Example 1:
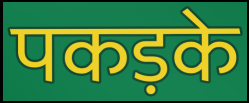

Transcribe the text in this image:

पकड़के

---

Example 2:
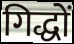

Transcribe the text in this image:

गिद्धों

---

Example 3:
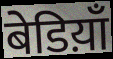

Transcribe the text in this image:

बेडिय़ाँ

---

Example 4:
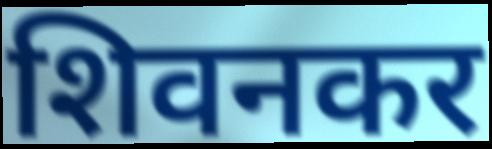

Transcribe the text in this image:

शिवनकर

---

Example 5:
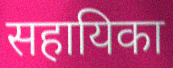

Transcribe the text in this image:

सहायिका